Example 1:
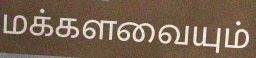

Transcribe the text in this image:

மக்களவையும்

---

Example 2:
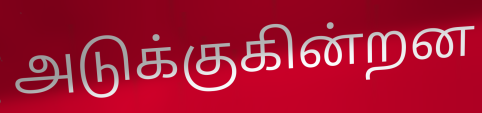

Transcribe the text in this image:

அடுக்குகின்றன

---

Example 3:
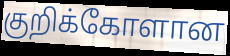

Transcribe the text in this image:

குறிக்கோளான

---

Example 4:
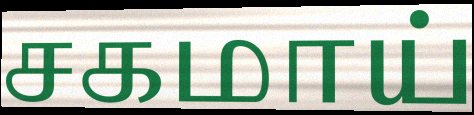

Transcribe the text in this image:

சகமாய்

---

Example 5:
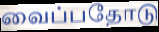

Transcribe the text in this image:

வைப்பதோடு